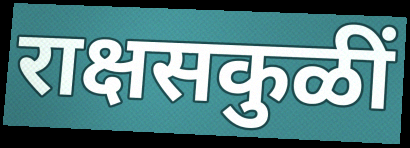
राक्षसकुळीं